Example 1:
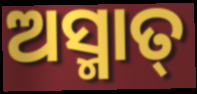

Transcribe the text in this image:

ଅସ୍ମାତ୍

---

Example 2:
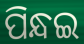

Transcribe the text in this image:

ପିନ୍ଧଇ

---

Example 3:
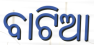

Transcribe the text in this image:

ବାଟିଆ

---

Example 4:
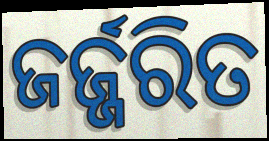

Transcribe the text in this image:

ଜର୍ଜ୍ଜରିତ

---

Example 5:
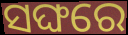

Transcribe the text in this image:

ସଙ୍ଘରେ